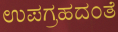
ಉಪಗ್ರಹದಂತೆ